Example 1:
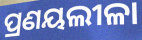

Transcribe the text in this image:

ପ୍ରଣୟଲୀଳା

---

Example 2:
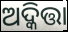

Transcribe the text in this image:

ଅଦ୍କିତ୍ତା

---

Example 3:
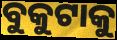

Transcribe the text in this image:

ବୁକୁଟାକୁ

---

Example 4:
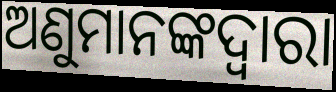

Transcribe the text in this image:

ଅଣୁମାନଙ୍କଦ୍ଵାରା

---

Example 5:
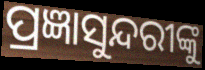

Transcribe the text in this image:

ପ୍ରଜ୍ଞାସୁନ୍ଦରୀଙ୍କୁ